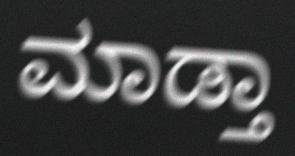
ಮಾಡ್ತಾ